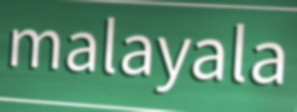
malayala